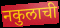
नकुलाची